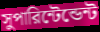
সুপারিন্টেন্ডেন্ট